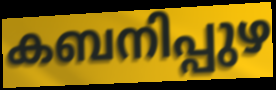
കബനിപ്പുഴ